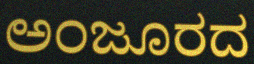
ಅಂಜೂರದ